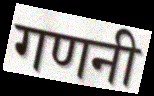
गणनी